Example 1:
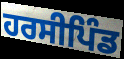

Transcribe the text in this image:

ਹਰਸੀਪਿੰਡ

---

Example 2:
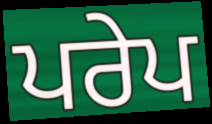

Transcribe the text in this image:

ਪਰੇਪ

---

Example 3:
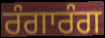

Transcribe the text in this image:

ਰੰਗਾਰੰਗ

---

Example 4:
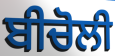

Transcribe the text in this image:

ਬੀਚੋਲੀ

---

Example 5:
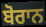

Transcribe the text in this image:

ਬੋਰਾਨ